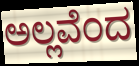
ಅಲ್ಲವೆಂದ